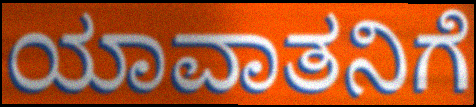
ಯಾವಾತನಿಗೆ